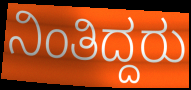
ನಿಂತಿದ್ದರು